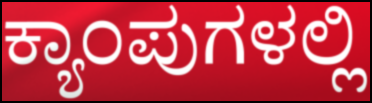
ಕ್ಯಾಂಪುಗಳಲ್ಲಿ